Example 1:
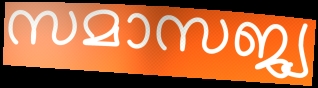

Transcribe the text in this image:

സമാസജ്യ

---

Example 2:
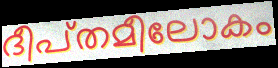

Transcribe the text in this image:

ദീപ്‌തമീലോകം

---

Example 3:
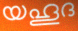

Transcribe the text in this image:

യഹൂദ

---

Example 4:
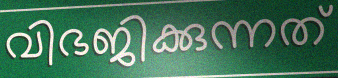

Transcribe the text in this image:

വിഭജിക്കുന്നത്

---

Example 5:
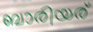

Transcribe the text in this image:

ബാരിയര്